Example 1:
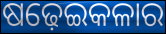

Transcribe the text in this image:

ଷଢ଼େଇକଳାର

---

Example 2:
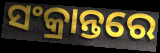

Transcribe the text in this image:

ସଂକ୍ରାନ୍ତରେ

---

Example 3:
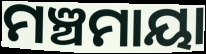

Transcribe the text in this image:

ମଞ୍ଚମାୟା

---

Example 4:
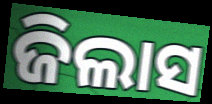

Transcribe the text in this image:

ଜିଲାସ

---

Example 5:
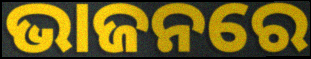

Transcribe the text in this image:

ଭାଜନରେ